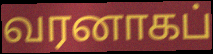
வரனாகப்